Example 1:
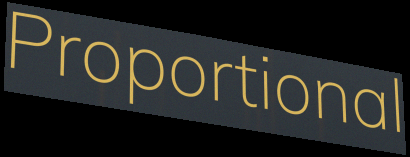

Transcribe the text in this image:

Proportional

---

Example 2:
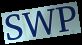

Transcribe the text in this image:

SWP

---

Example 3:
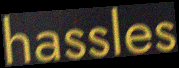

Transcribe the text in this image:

hassles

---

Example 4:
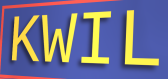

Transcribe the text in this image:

KWIL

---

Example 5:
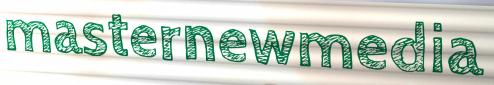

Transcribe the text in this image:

masternewmedia